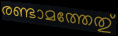
രണ്ടാമത്തേതു്